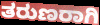
ತರುಣರಾಗಿ